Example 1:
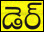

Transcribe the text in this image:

డెర్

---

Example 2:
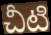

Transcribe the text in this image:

చీటి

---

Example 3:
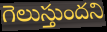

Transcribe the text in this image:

గెలుస్తుందని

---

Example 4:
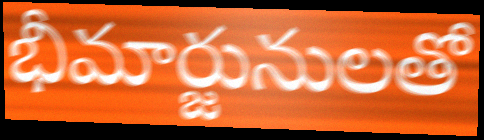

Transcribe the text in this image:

భీమార్జునులతో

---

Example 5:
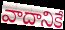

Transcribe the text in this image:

వాదానికే